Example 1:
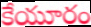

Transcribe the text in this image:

కేయూరం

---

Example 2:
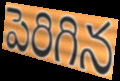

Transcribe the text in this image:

పెరిగిన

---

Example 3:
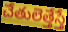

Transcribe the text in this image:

చేతులెత్తేస్తే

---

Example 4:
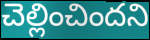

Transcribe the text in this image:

చెల్లించిందని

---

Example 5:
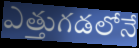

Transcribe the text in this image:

ఎత్తుగడలోనే